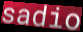
sadio